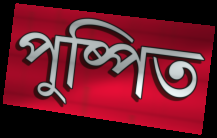
পুষ্পিত